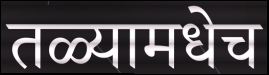
तळ्यामधेच